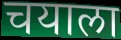
चयाला